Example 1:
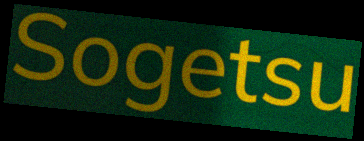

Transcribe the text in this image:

Sogetsu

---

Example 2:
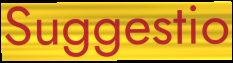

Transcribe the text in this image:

Suggestio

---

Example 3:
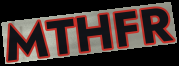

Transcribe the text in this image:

MTHFR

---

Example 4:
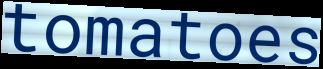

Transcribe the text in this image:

tomatoes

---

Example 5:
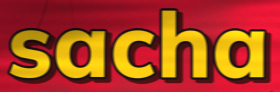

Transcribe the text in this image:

sacha